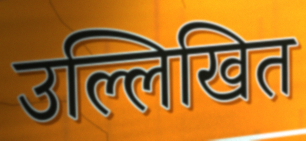
उल्लिखित